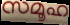
സമൂഹ